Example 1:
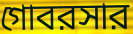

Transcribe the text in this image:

গোবরসার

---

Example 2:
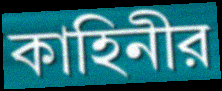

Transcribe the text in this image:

কাহিনীর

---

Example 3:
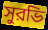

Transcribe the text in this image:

সুরভি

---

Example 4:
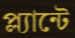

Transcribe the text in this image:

প্ল্যান্টে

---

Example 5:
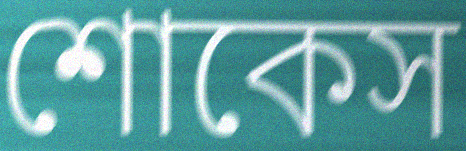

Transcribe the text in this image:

শোকেস